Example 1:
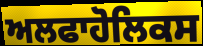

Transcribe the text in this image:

ਅਲਫਾਹੋਲਿਕਸ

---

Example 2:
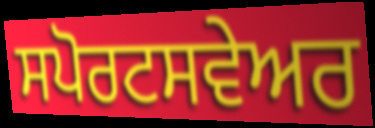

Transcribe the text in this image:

ਸਪੋਰਟਸਵੇਅਰ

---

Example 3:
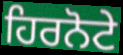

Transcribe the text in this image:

ਹਿਰਨੋਟੇ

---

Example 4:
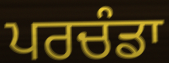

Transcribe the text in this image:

ਪਰਚੰਡਾ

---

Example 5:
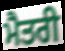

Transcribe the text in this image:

ਮੈਤਰੀ